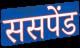
ससपेंड